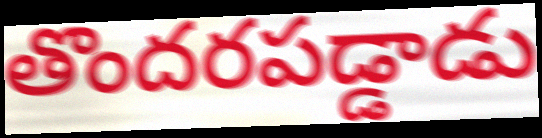
తొందరపడ్డాడు